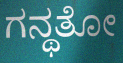
ಗನ್ಥತೋ